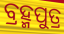
ବ୍ରହ୍ମପୁତ୍ର